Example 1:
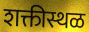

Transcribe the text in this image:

शक्तीस्थळ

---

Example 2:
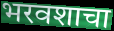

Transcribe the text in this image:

भरवशाचा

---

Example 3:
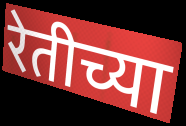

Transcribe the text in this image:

रेतीच्या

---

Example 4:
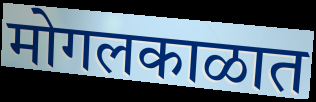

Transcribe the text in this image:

मोगलकाळात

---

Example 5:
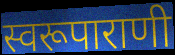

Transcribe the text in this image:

स्वरूपाराणी